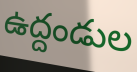
ఉద్దండుల